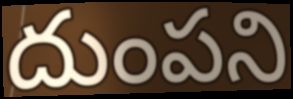
దుంపని